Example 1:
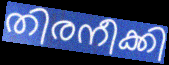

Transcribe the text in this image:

തിരനീക്കി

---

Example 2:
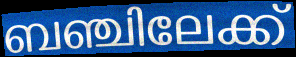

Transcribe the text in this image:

ബഞ്ചിലേക്ക്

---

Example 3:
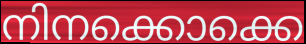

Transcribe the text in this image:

നിനക്കൊക്കെ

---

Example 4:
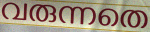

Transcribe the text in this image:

വരുന്നതെ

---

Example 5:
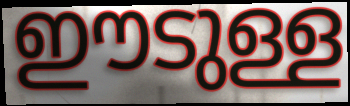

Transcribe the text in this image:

ഈടുള്ള